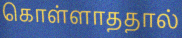
கொள்ளாததால்